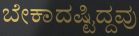
ಬೇಕಾದಷ್ಟಿದ್ದವು